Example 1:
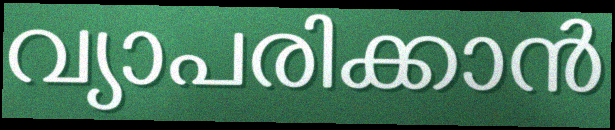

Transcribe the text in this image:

വ്യാപരിക്കാൻ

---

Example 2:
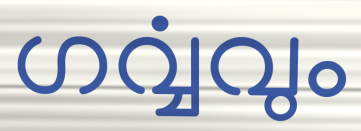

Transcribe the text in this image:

ഗൎവ്വവും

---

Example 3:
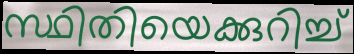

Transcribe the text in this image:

സ്ഥിതിയെക്കുറിച്ച്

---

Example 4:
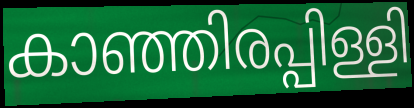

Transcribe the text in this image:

കാഞ്ഞിരപ്പിള്ളി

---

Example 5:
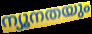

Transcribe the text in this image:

ന്യൂനതയും